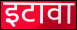
इटावा